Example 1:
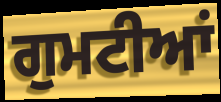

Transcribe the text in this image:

ਗੁਮਟੀਆਂ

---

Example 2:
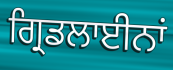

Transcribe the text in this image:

ਗ੍ਰਿਡਲਾਈਨਾਂ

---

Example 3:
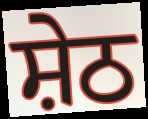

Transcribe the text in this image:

ਸ਼ੇਠ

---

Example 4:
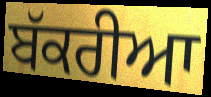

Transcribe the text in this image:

ਬੱਕਰੀਆ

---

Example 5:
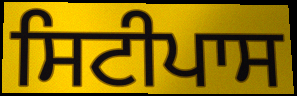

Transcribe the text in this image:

ਸਿਟੀਪਾਸ